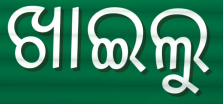
ଖାଇଲୁ